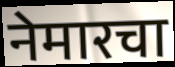
नेमारचा